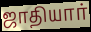
ஜாதியார்